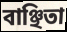
বাঞ্ছিতা